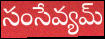
సంసేవ్యమ్